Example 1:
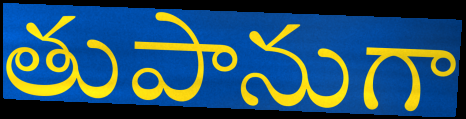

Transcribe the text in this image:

తుపానుగా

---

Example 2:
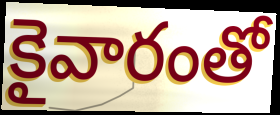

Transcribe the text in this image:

కైవారంతో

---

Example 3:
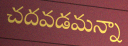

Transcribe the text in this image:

చదవడమన్నా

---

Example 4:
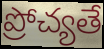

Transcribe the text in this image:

ప్రోచ్యతే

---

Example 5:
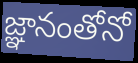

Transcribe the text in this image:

జ్ఞానంతోనో